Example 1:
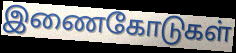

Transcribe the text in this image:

இணைகோடுகள்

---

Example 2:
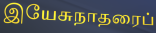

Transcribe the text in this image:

இயேசுநாதரைப்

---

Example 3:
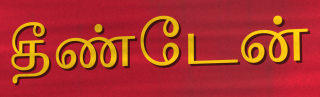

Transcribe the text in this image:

தீண்டேன்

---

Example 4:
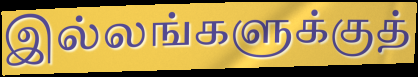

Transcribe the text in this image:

இல்லங்களுக்குத்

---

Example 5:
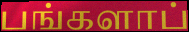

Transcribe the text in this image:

பங்களாப்